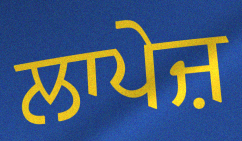
ਲਾਪੇਜ਼